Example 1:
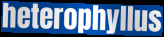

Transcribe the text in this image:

heterophyllus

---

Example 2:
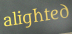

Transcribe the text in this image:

alighted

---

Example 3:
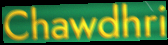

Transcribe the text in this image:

Chawdhri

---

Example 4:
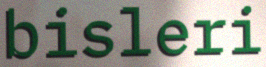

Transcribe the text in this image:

bisleri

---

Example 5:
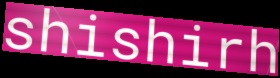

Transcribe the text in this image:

shishirh